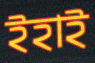
ইহাই